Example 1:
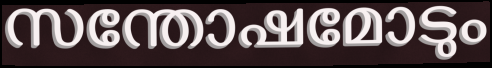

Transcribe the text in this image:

സന്തോഷമോടും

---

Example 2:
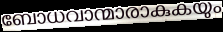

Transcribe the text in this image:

ബോധവാന്മാരാകുകയും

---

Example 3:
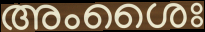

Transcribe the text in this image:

അംശൈഃ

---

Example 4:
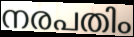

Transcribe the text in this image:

നരപതിം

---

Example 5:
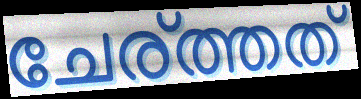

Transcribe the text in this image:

ചേര്ത്തത്